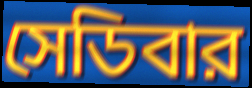
সেডিবার